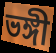
ভঙ্গী